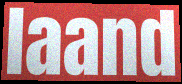
laand